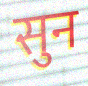
सुन